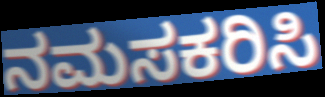
ನಮಸಕರಿಸಿ